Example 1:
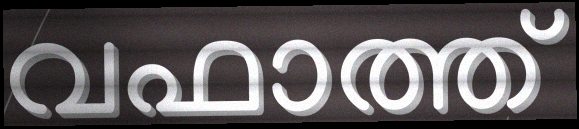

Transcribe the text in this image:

വഫാത്ത്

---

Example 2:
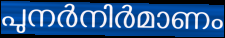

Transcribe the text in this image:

പുനർനിർമാണം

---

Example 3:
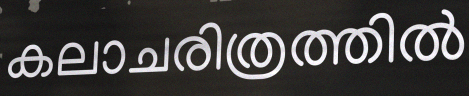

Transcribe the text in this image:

കലാചരിത്രത്തിൽ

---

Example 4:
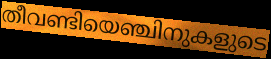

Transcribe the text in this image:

തീവണ്ടിയെഞ്ചിനുകളുടെ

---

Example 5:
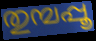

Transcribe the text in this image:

തുമ്പപ്പൂ